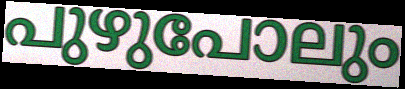
പുഴുപോലും